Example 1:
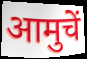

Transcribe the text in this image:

आमुचें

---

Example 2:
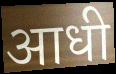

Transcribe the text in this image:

आधी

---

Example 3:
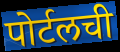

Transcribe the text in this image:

पोर्टलची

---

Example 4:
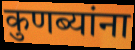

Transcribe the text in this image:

कुणब्यांना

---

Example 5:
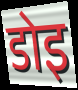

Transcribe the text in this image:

डोइ